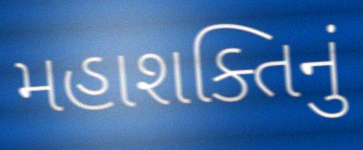
મહાશક્તિનું